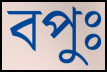
বপুঃ